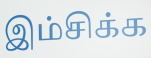
இம்சிக்க